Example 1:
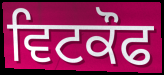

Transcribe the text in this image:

ਵਿਟਕੌਫ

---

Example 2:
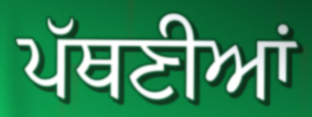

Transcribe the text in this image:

ਪੱਥਣੀਆਂ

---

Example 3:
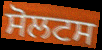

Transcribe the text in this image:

ਸੋਲਟਸ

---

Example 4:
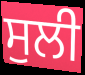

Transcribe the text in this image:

ਸੁਲੀ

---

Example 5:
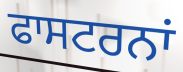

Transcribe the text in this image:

ਫਾਸਟਰਨਾਂ